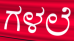
ಗಳಲೆ